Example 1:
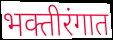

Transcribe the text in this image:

भक्तीरंगात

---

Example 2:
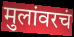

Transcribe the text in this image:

मुलांवरचं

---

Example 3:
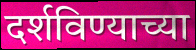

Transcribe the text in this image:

दर्शविण्याच्या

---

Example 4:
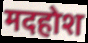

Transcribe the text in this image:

मदहोश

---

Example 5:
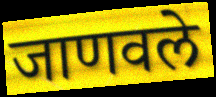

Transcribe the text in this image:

जाणवले